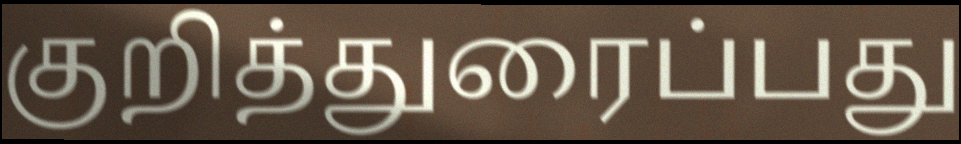
குறித்துரைப்பது